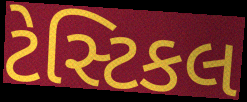
ટેસ્ટિકલ